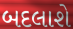
બદલાશે